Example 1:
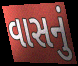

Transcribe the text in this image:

વાસનું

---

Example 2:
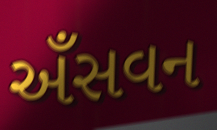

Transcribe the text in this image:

અઁસવન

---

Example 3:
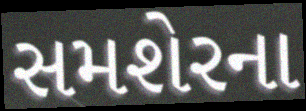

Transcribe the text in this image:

સમશેરના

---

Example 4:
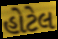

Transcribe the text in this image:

હોટેલ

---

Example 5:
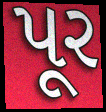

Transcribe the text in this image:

પૂર